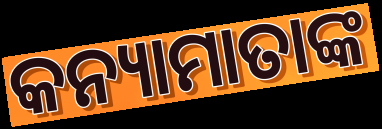
କନ୍ୟାମାତାଙ୍କ